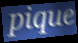
pique